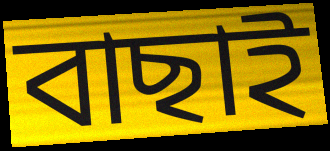
বাছাই